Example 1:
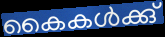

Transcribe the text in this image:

കൈകൾക്കു്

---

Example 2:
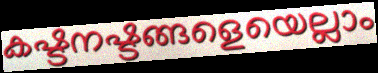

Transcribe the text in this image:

കഷ്ടനഷ്ടങ്ങളെയെല്ലാം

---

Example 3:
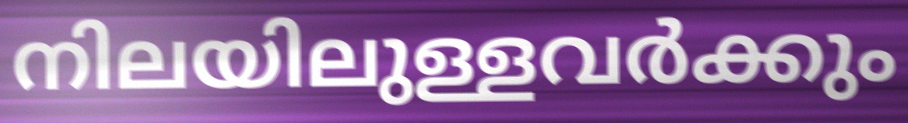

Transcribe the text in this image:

നിലയിലുള്ളവർക്കും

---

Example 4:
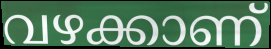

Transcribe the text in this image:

വഴക്കാണ്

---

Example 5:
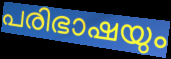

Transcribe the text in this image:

പരിഭാഷയും